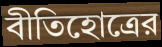
বীতিহোত্রের